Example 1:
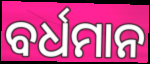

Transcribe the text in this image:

ବର୍ଧମାନ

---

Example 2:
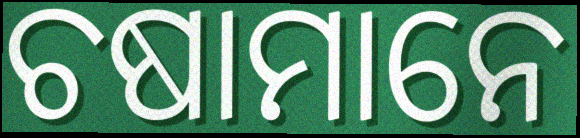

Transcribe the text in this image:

ଚଷାମାନେ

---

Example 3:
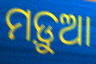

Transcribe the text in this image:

ମଡ଼ୁଆ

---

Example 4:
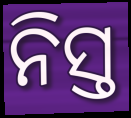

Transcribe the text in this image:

ନିସ୍ତ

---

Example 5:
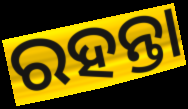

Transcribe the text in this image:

ରହନ୍ତା